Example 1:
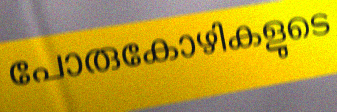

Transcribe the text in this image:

പോരുകോഴികളുടെ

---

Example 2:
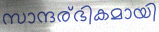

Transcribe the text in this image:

സാന്ദര്ഭികമായി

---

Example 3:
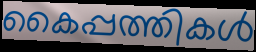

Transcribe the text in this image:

കൈപ്പത്തികൾ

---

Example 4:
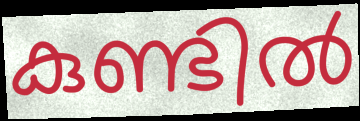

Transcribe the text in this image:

കുണ്ടിൽ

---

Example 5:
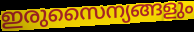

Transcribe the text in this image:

ഇരുസൈന്യങ്ങളും